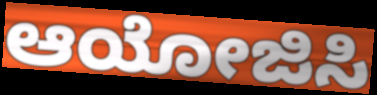
ಆಯೋಜಿಸಿ